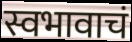
स्वभावाचं